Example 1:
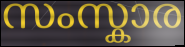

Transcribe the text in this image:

സംസ്കാര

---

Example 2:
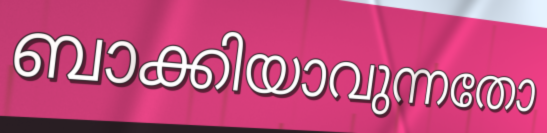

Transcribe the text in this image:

ബാക്കിയാവുന്നതോ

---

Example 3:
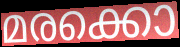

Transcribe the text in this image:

മരക്കൊ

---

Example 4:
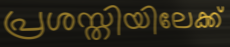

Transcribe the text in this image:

പ്രശസ്തിയിലേക്ക്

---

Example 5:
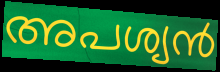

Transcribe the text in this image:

അപശ്യൻ